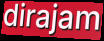
dirajam